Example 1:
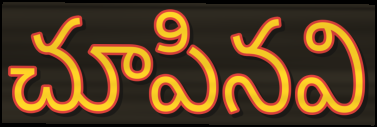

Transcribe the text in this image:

చూపినవి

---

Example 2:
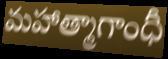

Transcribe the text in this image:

మహాత్మాగాంధీ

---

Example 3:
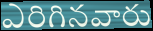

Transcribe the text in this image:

ఎరిగినవారు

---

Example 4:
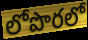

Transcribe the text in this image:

లోపొరలో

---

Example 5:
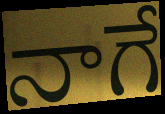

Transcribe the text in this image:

నాగే